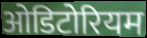
ओडिटोरियम